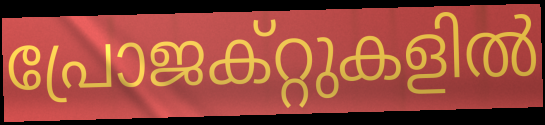
പ്രോജക്റ്റുകളിൽ